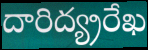
దారిద్య్రరేఖ